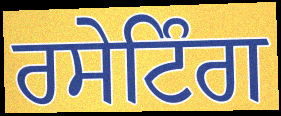
ਰਸੇਟਿੰਗ